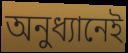
অনুধ্যানেই